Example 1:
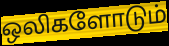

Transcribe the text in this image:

ஒலிகளோடும்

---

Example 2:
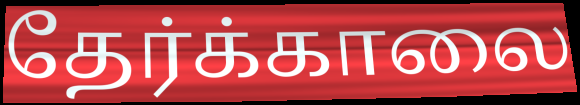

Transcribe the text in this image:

தேர்க்காலை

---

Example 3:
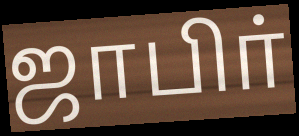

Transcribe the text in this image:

ஜாபிர்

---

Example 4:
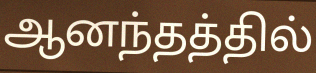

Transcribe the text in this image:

ஆனந்தத்தில்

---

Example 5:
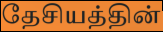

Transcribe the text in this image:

தேசியத்தின்